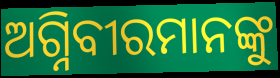
ଅଗ୍ନିବୀରମାନଙ୍କୁ